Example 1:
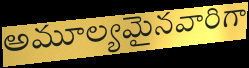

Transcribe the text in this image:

అమూల్యమైనవారిగా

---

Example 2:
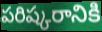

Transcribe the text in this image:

పరిష్కరానికి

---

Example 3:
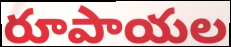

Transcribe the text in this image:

రూపాయల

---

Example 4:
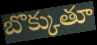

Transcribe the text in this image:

బొక్కుతూ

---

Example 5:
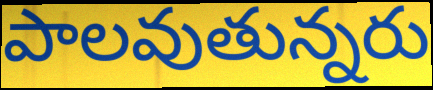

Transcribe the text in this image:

పాలవుతున్నరు